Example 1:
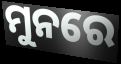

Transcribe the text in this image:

ମୁନରେ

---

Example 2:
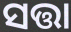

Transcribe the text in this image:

ସତ୍ତା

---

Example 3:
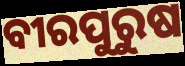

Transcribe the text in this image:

ବୀରପୁରୁଷ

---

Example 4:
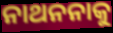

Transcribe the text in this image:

ନାଥନନାକୁ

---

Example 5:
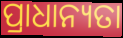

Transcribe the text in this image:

ପ୍ରାଧାନ୍ୟତା